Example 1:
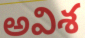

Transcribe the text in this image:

అవిశ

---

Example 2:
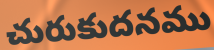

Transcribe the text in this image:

చురుకుదనము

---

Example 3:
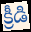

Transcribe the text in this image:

క్రీడి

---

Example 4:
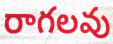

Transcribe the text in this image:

రాగలవు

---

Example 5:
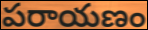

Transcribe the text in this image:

పరాయణం